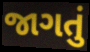
જાગતું